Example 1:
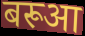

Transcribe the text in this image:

बरूआ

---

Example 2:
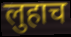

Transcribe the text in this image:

लुहाच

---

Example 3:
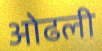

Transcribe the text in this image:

ओढली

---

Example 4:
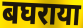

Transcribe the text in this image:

बघराया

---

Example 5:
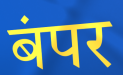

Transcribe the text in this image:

बंपर